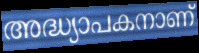
അദ്ധ്യാപകനാണ്